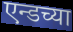
एन्डच्या